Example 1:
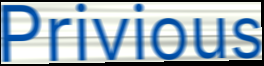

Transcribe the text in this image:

Privious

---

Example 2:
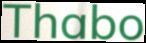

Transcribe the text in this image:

Thabo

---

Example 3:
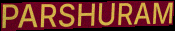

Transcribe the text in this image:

PARSHURAM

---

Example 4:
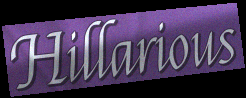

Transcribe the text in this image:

Hillarious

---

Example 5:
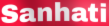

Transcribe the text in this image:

Sanhati